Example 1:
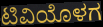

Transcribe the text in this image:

ಟಿವಿಯೊಳಗ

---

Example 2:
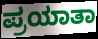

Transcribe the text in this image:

ಪ್ರಯಾತಾ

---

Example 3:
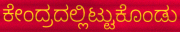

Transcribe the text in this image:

ಕೇಂದ್ರದಲ್ಲಿಟ್ಟುಕೊಂಡು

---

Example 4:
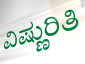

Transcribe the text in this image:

ವಿಷ್ಣುರಿತಿ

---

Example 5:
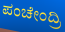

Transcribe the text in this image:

ಪಂಚೇಂದ್ರಿ